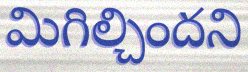
మిగిల్చిందని